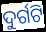
ଦୁର୍ଗଟି